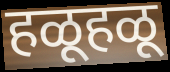
हळूहळू